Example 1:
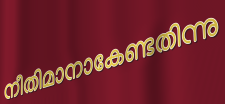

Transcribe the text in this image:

നീതിമാനാകേണ്ടതിന്നു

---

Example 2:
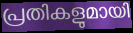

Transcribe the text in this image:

പ്രതികളുമായി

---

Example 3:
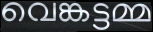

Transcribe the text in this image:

വെങ്കട്ടമ്മ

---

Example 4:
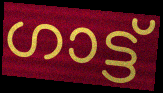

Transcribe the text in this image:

ഗാട്ട്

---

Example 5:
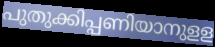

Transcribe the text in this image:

പുതുക്കിപ്പണിയാനുളള